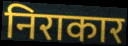
निराकार